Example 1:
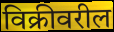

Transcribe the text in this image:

विक्रीवरील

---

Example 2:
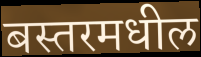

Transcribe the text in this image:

बस्तरमधील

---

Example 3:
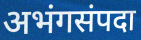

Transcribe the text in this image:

अभंगसंपदा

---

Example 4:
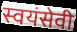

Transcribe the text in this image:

स्वयंसेवी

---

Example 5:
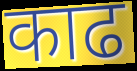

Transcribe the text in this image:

काढ